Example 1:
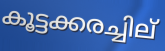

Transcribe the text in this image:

കൂട്ടക്കരച്ചില്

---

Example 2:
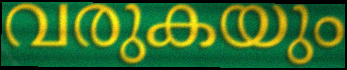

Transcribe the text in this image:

വരുകയും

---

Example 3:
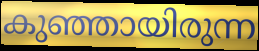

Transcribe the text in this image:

കുഞ്ഞായിരുന്ന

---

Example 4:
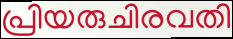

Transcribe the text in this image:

പ്രിയരുചിരവതി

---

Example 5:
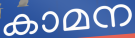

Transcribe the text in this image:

കാമന